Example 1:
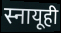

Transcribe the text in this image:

स्नायूही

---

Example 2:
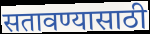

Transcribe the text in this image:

सतावण्यासाठी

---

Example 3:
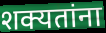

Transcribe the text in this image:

शक्यतांना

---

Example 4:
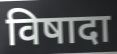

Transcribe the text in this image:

विषादा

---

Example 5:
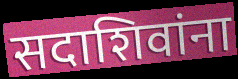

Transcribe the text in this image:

सदाशिवांना